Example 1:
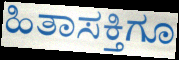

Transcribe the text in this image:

ಹಿತಾಸಕ್ತಿಗೂ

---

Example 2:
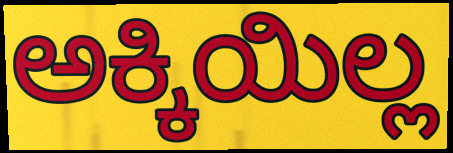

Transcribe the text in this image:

ಅಕ್ಕಿಯಿಲ್ಲ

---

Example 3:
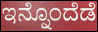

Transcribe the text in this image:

ಇನ್ನೊಂದೆಡೆ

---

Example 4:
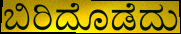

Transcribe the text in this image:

ಬಿರಿದೊಡೆದು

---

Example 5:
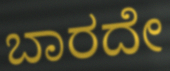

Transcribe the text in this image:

ಬಾರದೇ